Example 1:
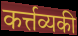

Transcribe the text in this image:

कर्त्तव्यकी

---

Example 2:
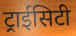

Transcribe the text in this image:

ट्राईसिटी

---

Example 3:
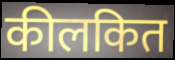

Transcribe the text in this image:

कीलकित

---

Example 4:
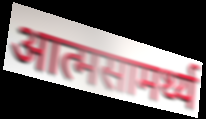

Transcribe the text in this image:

आत्मसामर्थ्य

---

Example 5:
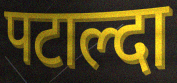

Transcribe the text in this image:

पटाल्दा